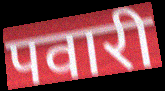
पवारी